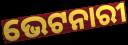
ଭେଟନାରୀ